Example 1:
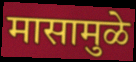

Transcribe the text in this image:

मासामुळे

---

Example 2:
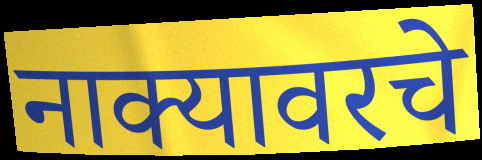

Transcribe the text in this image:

नाक्यावरचे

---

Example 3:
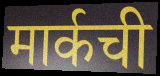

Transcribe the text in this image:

मार्कची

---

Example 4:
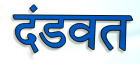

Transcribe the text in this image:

दंडवत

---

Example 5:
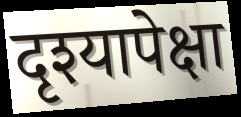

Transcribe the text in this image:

दृश्यापेक्षा